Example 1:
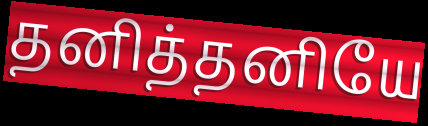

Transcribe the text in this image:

தனித்தனியே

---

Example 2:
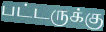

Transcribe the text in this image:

பட்டருக்கு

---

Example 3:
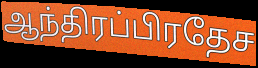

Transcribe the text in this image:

ஆந்திரப்பிரதேச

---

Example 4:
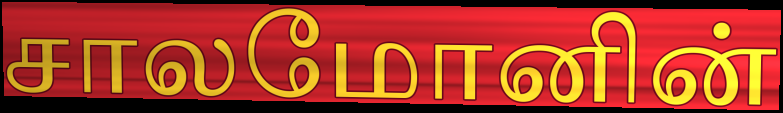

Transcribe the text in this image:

சாலமோனின்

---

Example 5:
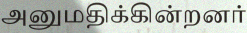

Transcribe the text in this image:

அனுமதிக்கின்றனர்